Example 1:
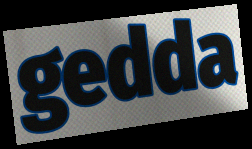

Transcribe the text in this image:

gedda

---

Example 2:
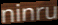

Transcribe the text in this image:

ninru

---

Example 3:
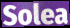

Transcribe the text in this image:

Solea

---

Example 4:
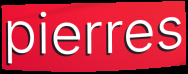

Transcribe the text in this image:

pierres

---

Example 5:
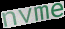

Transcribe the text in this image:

nvme